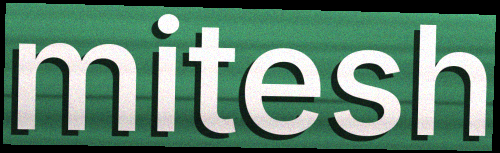
mitesh